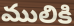
ములికి